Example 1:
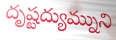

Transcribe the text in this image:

దృష్టద్యుమ్నుని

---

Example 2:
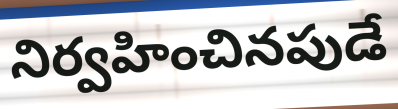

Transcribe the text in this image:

నిర్వహించినపుడే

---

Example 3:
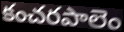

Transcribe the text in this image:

కంచరపాలెం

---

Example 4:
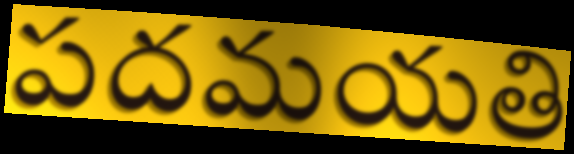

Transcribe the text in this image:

పదమయతి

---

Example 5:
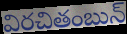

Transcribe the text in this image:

విరచితంబున్